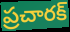
ప్రచారక్